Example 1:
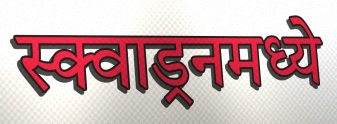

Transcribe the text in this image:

स्क्वाड्रनमध्ये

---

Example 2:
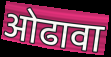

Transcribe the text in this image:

ओढावा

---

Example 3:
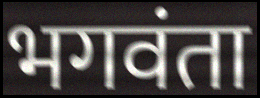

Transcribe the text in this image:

भगवंता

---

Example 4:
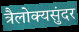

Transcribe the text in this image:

त्रैलोक्यसुंदर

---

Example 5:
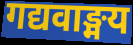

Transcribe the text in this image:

गद्यवाङ्मय